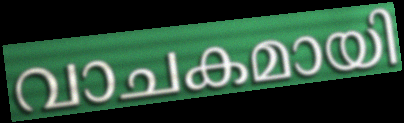
വാചകമായി